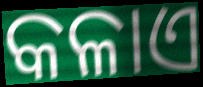
କଳାଏ